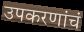
उपकरणांचं